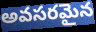
అవసరమైన